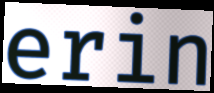
erin